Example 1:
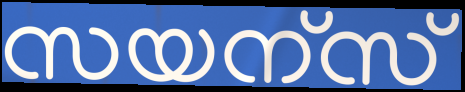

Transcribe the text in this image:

സയന്സ്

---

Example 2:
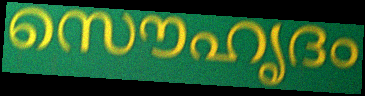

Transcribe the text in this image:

സൌഹൃദം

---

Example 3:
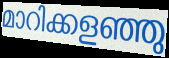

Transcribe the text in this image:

മാറിക്കളഞ്ഞു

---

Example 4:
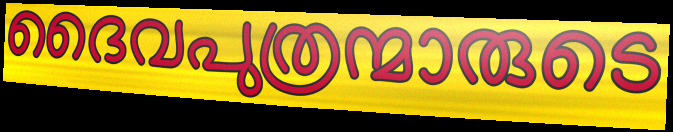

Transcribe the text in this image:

ദൈവപുത്രന്മാരുടെ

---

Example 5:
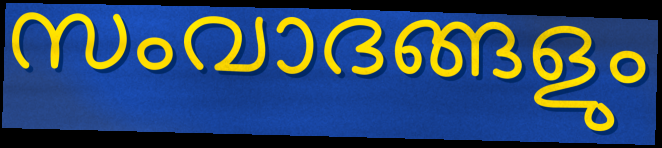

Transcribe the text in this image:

സംവാദങ്ങളും